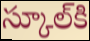
స్కూల్‌కి